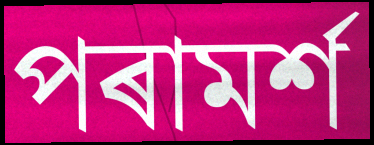
পৰামৰ্শ